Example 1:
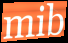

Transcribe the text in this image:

mib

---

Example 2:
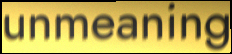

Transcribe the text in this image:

unmeaning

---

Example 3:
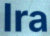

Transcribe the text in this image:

Ira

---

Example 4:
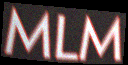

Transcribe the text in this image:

MLM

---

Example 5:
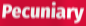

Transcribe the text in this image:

Pecuniary